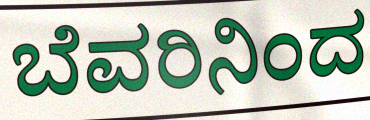
ಬೆವರಿನಿಂದ